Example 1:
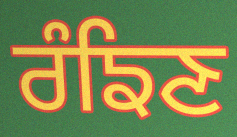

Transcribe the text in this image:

ਰੰਙਿਣ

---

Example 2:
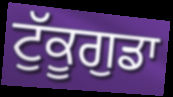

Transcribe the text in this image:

ਟੁੱਕੂਗੁਡਾ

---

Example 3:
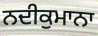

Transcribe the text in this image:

ਨਦੀਕੁਮਾਨਾ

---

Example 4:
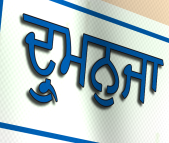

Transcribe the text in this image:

ਦ੍ਰੁਮਨੁਜਾ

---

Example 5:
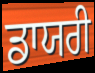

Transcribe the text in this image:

ਡਾਯਰੀ